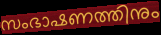
സംഭാഷണത്തിനും